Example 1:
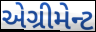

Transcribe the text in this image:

એગ્રીમેન્ટ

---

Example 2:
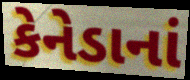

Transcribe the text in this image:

કેનેડાનાં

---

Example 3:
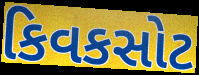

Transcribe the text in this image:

કિવકસોટ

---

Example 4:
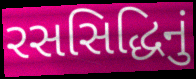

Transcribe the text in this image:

રસસિદ્ધિનું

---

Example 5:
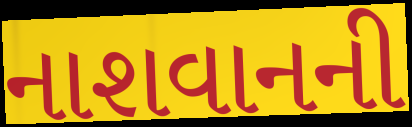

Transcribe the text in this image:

નાશવાનની